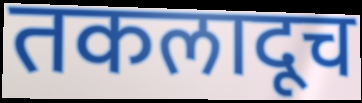
तकलादूच